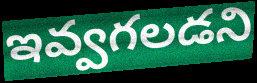
ఇవ్వగలడని